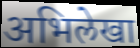
अभिलेखा